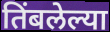
तिंबलेल्या